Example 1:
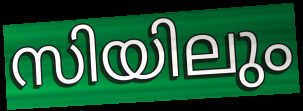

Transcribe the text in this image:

സിയിലും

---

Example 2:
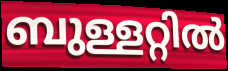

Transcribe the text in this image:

ബുള്ളറ്റിൽ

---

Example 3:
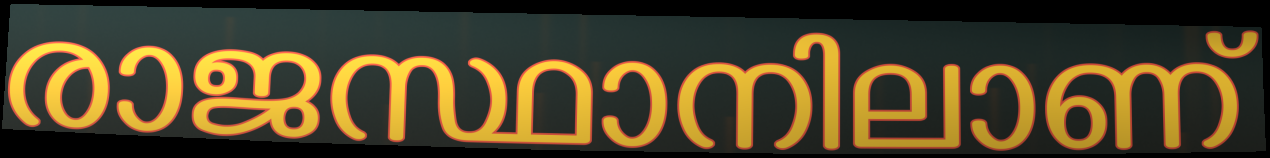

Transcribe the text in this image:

രാജസ്ഥാനിലാണ്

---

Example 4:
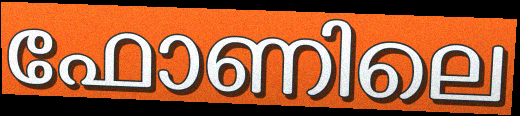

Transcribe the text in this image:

ഫോണിലെ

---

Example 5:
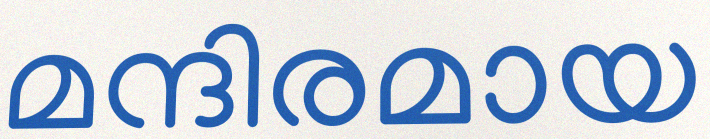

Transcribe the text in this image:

മന്ദിരമായ